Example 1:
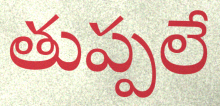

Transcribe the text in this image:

తుప్పలే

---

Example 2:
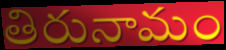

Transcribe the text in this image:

తిరునామం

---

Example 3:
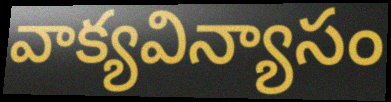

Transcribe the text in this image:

వాక్యవిన్యాసం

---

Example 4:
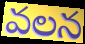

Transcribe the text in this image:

వలన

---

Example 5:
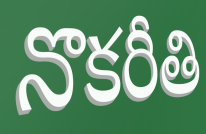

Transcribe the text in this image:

నొకరీతి